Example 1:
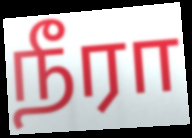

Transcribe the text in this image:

நீரா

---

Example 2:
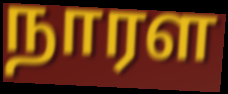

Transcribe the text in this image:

நாரள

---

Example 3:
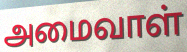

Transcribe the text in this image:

அமைவாள்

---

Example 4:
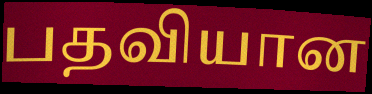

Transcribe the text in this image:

பதவியான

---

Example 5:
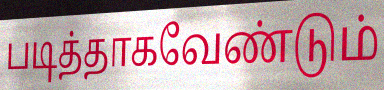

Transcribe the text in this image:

படித்தாகவேண்டும்